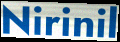
Nirinil